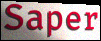
Saper